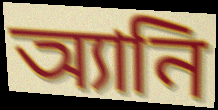
অ্যানি